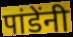
पांडेंनी